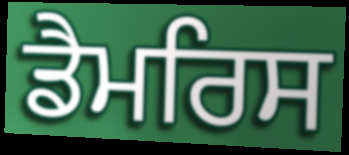
ਡੈਮਰਿਸ